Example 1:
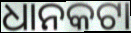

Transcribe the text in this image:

ଧାନକଟା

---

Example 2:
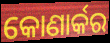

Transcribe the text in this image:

କୋଣାର୍କର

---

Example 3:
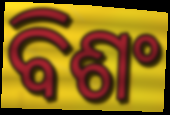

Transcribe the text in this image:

ବିଶଂ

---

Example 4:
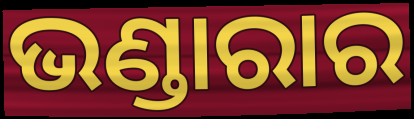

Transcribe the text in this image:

ଭଣ୍ଡାରାର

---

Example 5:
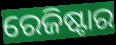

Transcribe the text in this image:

ରେଜିଷ୍ଟାର